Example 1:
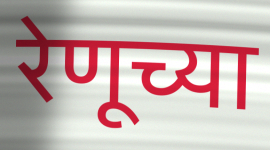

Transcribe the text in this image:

रेणूच्या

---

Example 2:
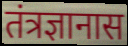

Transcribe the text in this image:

तंत्रज्ञानास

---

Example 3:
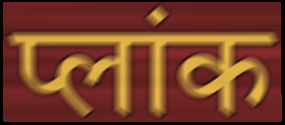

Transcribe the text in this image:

प्लांक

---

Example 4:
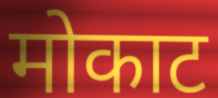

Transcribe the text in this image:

मोकाट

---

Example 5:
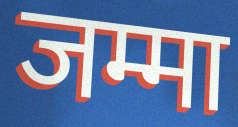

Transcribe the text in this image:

जम्मा